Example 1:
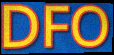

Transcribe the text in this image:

DFO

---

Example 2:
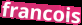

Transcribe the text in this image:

francois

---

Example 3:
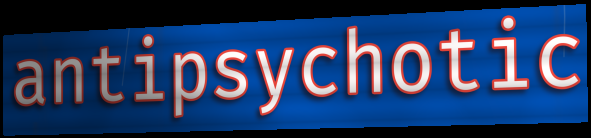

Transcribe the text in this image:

antipsychotic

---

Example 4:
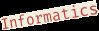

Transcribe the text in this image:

Informatics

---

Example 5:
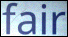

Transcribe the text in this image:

fair